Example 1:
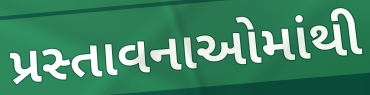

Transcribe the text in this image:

પ્રસ્તાવનાઓમાંથી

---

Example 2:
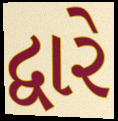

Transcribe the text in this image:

દ્વારે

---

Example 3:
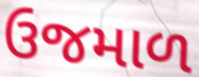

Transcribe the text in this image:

ઉજમાળ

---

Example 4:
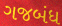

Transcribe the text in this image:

ગજબંધ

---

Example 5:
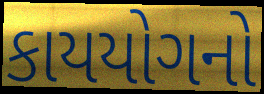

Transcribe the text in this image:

કાયયોગનો